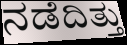
ನಡೆದಿತ್ತು